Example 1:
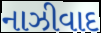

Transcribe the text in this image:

નાઝીવાદ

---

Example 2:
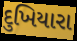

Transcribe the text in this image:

દુખિયારા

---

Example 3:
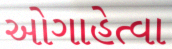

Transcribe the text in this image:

ઓગાહેત્વા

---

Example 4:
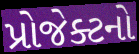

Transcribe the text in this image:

પ્રોજેક્ટનો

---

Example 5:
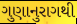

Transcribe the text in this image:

ગુણાનુરાગથી